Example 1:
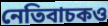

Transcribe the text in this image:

নেতিবাচকও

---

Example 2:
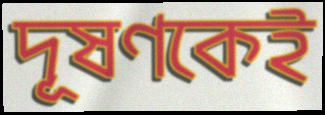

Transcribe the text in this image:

দূষণকেই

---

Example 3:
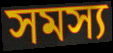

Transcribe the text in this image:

সমস্য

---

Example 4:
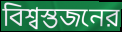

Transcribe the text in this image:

বিশ্বস্তজনের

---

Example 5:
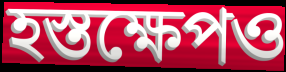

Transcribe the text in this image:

হস্তক্ষেপও